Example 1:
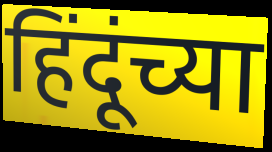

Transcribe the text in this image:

हिंदूंच्या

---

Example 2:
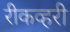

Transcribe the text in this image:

रीकव्हरी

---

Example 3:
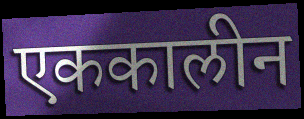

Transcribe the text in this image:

एककालीन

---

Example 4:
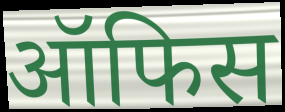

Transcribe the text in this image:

ऑफिस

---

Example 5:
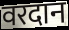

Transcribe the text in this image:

वरदान